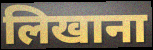
लिखाना